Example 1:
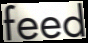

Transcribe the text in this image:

feed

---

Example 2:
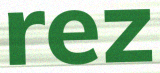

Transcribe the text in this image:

rez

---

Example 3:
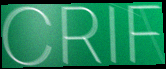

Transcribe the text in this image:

CRIF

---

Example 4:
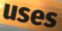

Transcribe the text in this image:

uses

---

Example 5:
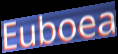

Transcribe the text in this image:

Euboea